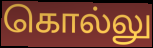
கொல்லு